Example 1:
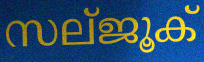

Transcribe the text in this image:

സല്ജൂക്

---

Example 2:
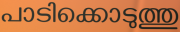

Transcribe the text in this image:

പാടിക്കൊടുത്തു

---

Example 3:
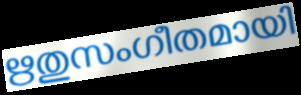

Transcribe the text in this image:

ഋതുസംഗീതമായി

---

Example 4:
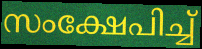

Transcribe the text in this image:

സംക്ഷേപിച്ച്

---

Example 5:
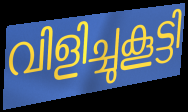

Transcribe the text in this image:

വിളിച്ചുകൂട്ടി